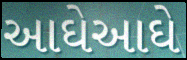
આઘેઆઘે